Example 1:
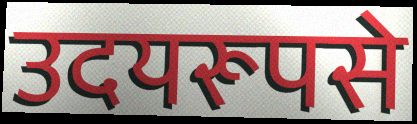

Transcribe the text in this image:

उदयरूपसे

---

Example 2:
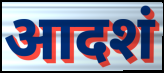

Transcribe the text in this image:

आदशं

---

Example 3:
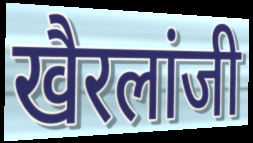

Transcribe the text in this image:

खैरलांजी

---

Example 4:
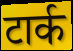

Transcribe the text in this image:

टार्क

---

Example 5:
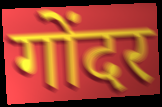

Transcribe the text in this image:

गोंदर